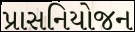
પ્રાસનિયોજન